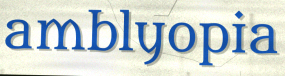
amblyopia